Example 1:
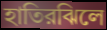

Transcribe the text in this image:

হাতিরঝিলে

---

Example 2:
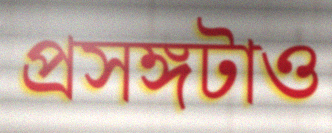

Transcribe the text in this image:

প্রসঙ্গটাও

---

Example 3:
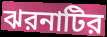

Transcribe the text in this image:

ঝরনাটির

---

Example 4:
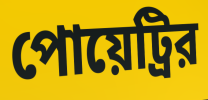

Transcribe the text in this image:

পোয়েট্রির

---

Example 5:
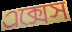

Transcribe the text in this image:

এক্সেস